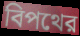
বিপথের